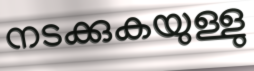
നടക്കുകയുള്ളു